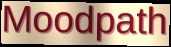
Moodpath